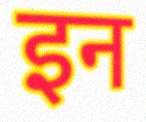
इन